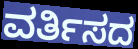
ವರ್ತಿಸದ